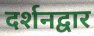
दर्शनद्वार